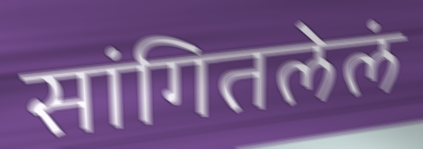
सांगितलेलं